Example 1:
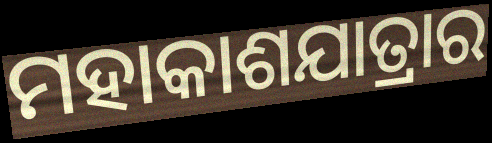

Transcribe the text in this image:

ମହାକାଶଯାତ୍ରାର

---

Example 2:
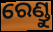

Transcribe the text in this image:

ରେଣ୍ଡୁ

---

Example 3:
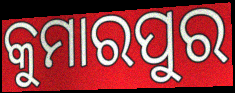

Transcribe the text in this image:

କୁମାରପୁର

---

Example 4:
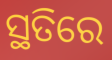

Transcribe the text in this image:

ସ୍ଥତିରେ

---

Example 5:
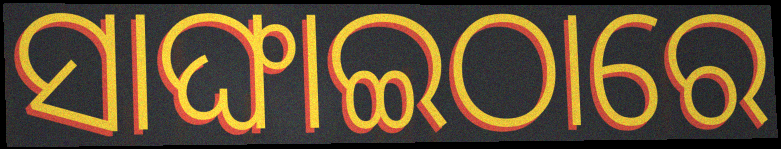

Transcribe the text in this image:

ସାଙ୍ଘାଇଠାରେ